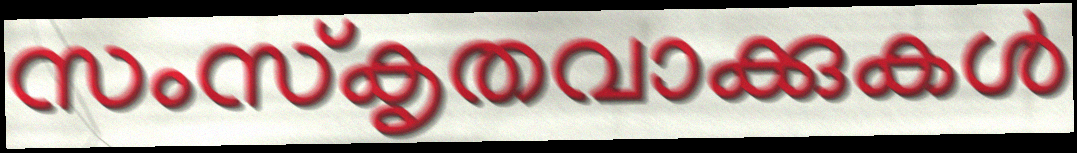
സംസ്കൃതവാക്കുകൾ